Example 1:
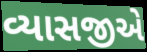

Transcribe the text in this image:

વ્યાસજીએ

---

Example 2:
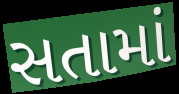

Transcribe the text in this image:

સતામાં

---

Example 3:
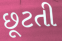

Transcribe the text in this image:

છૂટતી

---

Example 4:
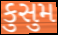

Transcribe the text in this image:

કુસુમ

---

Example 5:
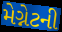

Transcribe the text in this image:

મેગ્નેટની